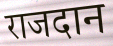
राजदान